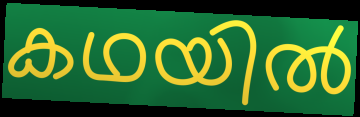
കഥയിൽ